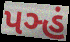
પઞ્હં